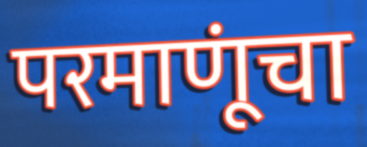
परमाणूंचा